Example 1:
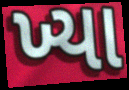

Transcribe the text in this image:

ખ્યા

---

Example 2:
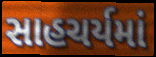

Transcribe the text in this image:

સાહચર્યમાં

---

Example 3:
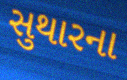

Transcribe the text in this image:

સુથારના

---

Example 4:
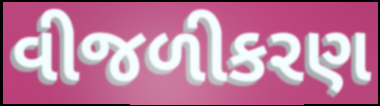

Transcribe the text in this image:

વીજળીકરણ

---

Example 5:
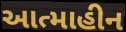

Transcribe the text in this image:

આત્માહીન